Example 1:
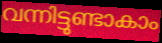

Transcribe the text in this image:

വന്നിട്ടുണ്ടാകാം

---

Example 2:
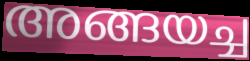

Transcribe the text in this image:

അങ്ങയച്ച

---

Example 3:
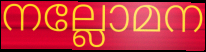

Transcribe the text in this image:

നല്ലോമന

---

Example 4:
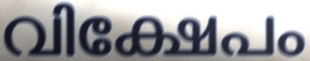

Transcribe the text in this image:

വിക്ഷേപം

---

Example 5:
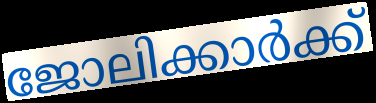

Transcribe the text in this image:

ജോലിക്കാർക്ക്